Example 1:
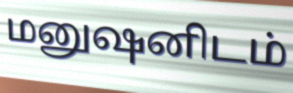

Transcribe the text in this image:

மனுஷனிடம்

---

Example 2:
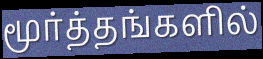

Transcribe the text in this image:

மூர்த்தங்களில்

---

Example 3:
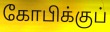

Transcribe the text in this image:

கோபிக்குப்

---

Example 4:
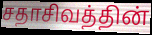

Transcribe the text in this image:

சதாசிவத்தின்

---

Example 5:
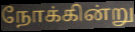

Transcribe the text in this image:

நோக்கின்று